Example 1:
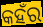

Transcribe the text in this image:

କହଁର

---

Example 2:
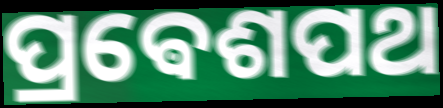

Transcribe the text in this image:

ପ୍ରଵେଶପଥ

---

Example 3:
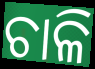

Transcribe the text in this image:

ଚାଳି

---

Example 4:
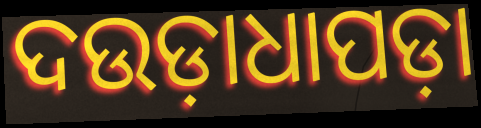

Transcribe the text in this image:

ଦଉଡ଼ାଧାପଡ଼ା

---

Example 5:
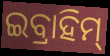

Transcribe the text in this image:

ଇବ୍ରାହିମ୍